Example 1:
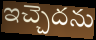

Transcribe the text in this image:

ఇచ్చెదను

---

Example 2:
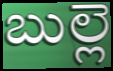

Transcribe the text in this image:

బుల్లె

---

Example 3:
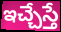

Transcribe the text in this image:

ఇచ్చేస్తే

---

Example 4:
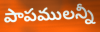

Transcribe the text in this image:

పాపములన్నీ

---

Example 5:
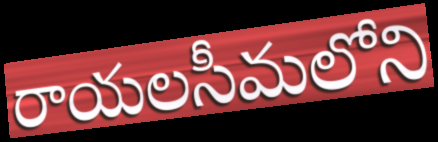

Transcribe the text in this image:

రాయలసీమలోని